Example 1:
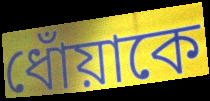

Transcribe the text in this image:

ধোঁয়াকে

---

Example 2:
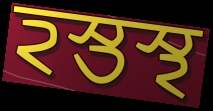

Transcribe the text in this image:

হস্তস্থ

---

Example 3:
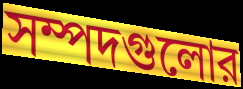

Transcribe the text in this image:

সম্পদগুলোর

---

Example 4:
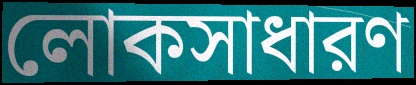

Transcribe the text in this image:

লোকসাধারণ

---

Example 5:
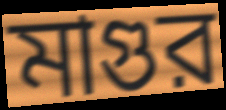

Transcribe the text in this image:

মাগুর